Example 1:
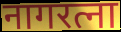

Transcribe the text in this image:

नागरत्ना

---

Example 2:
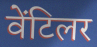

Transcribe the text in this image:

वेंटिलर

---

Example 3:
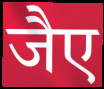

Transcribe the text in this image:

जैए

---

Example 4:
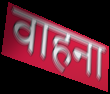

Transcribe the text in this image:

वाहना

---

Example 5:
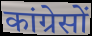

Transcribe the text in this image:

कांग्रेसों